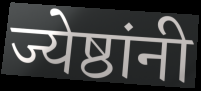
ज्येष्ठांनी